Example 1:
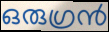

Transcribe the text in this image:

ഒരുഗ്രൻ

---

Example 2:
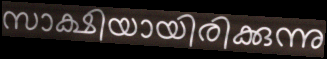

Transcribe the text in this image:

സാക്ഷിയായിരിക്കുന്നു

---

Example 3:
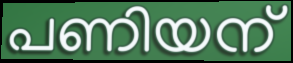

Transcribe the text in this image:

പണിയന്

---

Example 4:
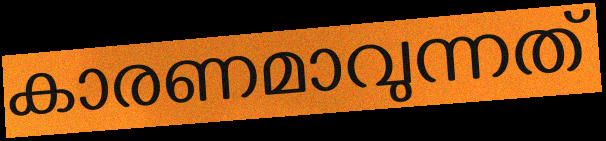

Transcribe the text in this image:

കാരണമാവുന്നത്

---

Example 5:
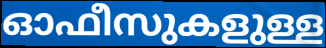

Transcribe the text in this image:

ഓഫീസുകളുള്ള